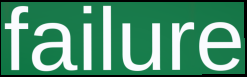
failure